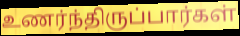
உணர்ந்திருப்பார்கள்